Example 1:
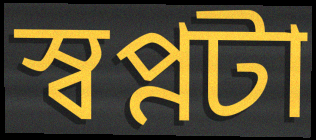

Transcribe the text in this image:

স্বপ্নটা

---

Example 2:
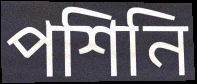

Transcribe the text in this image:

পশিনি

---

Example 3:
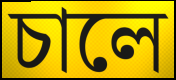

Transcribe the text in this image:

চালে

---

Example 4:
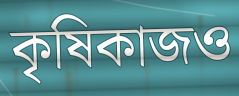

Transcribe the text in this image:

কৃষিকাজও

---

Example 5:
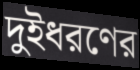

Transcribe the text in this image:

দুইধরণের